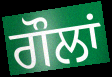
ਗੌਲਾਂ